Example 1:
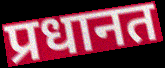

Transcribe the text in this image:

प्रधानत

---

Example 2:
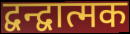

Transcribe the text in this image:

द्वन्द्वात्मक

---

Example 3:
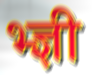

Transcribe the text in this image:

भ्ज्ञी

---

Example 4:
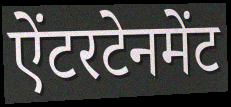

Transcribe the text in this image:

ऐंटरटेनमेंट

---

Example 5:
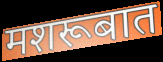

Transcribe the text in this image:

मशरूबात